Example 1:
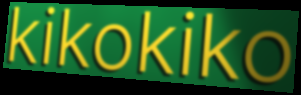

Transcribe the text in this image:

kikokiko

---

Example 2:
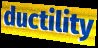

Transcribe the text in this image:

ductility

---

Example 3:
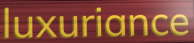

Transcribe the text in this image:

luxuriance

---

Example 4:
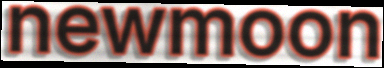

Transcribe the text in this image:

newmoon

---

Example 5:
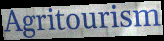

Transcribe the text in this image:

Agritourism